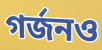
গর্জনও